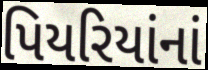
પિયરિયાંનાં